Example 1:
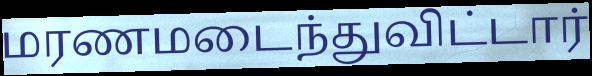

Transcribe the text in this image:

மரணமடைந்துவிட்டார்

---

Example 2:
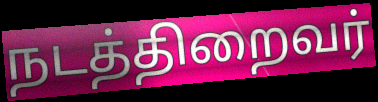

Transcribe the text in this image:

நடத்திறைவர்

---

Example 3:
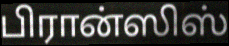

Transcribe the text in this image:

பிரான்ஸிஸ்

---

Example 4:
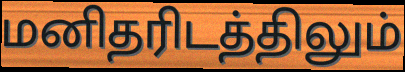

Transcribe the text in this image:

மனிதரிடத்திலும்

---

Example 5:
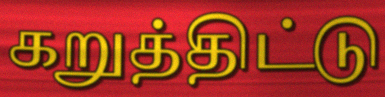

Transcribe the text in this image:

கறுத்திட்டு